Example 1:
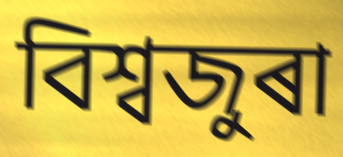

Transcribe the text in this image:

বিশ্বজুৰা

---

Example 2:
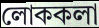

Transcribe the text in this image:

লোককলা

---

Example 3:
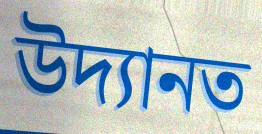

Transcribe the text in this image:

উদ্যানত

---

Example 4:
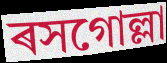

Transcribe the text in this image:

ৰসগোল্লা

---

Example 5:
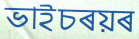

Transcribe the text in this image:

ভাইচৰয়ৰ